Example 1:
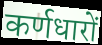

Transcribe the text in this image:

कर्णधारों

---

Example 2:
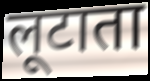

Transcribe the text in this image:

लूटाता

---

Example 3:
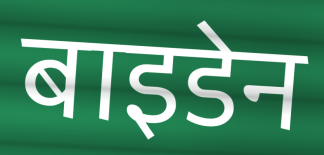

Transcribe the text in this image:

बाइडेन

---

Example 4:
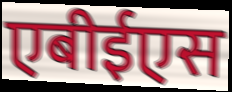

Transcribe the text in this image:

एबीईएस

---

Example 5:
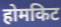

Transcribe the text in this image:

होमकिट